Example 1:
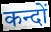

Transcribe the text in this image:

कन्दों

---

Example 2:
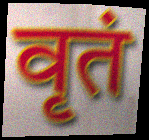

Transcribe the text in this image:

वृतं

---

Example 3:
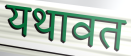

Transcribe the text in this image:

यथावत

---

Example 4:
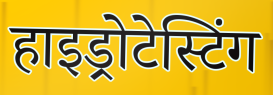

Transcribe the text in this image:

हाइड्रोटेस्टिंग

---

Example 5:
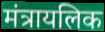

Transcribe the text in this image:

मंत्रायलिक